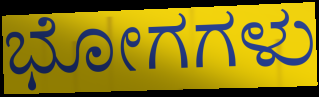
ಭೋಗಗಳು